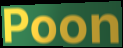
Poon